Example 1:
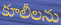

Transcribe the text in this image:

కూలీలను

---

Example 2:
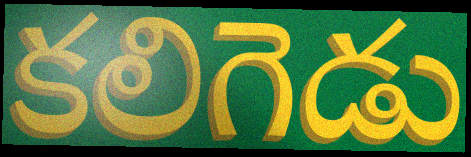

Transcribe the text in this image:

కలిగెడు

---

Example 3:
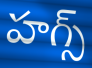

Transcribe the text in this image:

హగ్స్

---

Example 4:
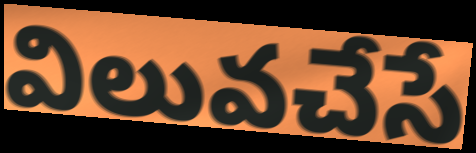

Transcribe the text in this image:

విలువచేసే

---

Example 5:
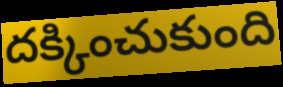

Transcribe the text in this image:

దక్కించుకుంది